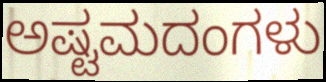
ಅಷ್ಟಮದಂಗಳು